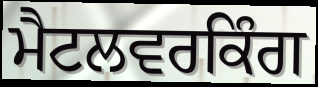
ਮੈਟਲਵਰਕਿੰਗ